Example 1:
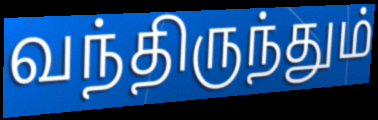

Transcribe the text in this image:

வந்திருந்தும்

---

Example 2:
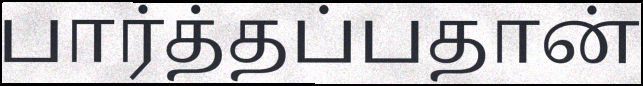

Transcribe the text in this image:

பார்த்தப்பதான்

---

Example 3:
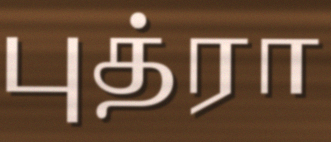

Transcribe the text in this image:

புத்ரா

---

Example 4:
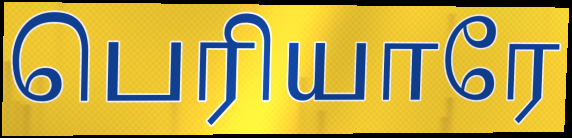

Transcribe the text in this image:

பெரியாரே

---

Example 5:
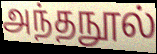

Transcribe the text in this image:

அந்தநூல்